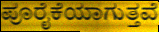
ಪೂರೈಕೆಯಾಗುತ್ತವೆ